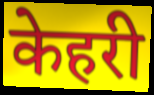
केहरी